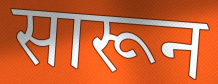
सारून